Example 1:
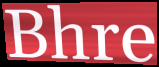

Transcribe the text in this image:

Bhre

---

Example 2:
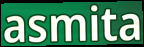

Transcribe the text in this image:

asmita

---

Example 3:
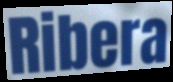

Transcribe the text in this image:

Ribera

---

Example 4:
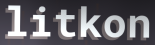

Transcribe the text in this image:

litkon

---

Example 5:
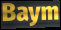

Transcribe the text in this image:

Baym